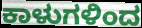
ಕಾಳುಗಳಿಂದ